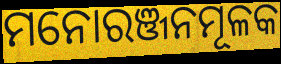
ମନୋରଞ୍ଜନମୂଳକ